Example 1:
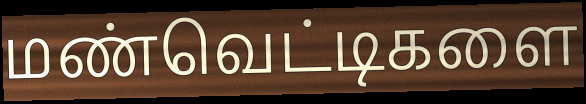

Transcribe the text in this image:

மண்வெட்டிகளை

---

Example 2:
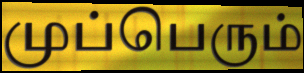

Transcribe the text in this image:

முப்பெரும்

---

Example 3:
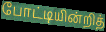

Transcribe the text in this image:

போட்டியின்றித்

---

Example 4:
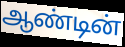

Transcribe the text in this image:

ஆண்டின்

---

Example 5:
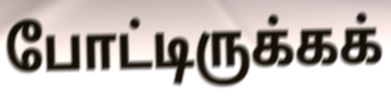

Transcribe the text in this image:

போட்டிருக்கக்